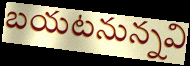
బయటనున్నవి